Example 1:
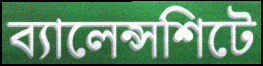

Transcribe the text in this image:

ব্যালেন্সশিটে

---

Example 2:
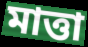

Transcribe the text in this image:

মাত্তা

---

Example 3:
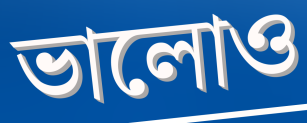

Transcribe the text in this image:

ভালোও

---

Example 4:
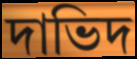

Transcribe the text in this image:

দাভিদ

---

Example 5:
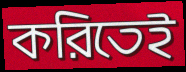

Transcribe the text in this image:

করিতেই